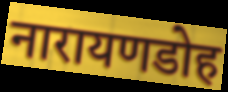
नारायणडोह